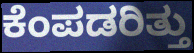
ಕೆಂಪಡರಿತ್ತು